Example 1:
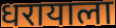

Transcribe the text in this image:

धरायाला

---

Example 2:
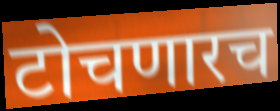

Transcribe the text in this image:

टोचणारच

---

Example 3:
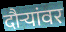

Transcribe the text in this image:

दौऱ्यांवर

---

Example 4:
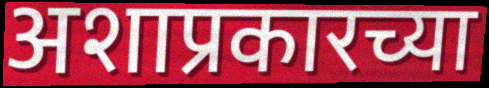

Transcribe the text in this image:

अशाप्रकारच्या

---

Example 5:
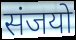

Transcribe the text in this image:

संजयो